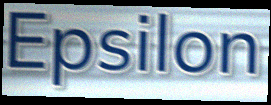
Epsilon